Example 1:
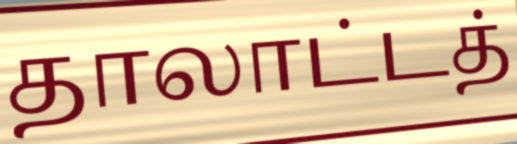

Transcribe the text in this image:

தாலாட்டத்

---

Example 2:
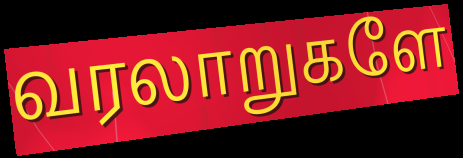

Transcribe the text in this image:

வரலாறுகளே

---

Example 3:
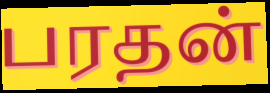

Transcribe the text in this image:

பரதன்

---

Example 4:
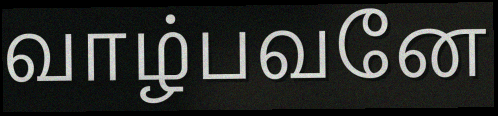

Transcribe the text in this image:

வாழ்பவனே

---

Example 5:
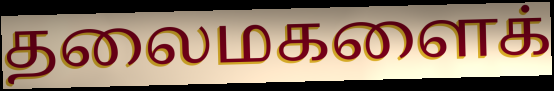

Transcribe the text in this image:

தலைமகளைக்